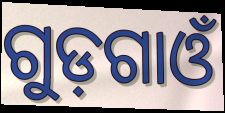
ଗୁଡ଼ଗାଓଁ